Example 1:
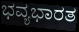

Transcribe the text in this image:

ಭವ್ಯಭಾರತ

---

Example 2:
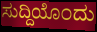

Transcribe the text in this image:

ಸುದ್ದಿಯೊಂದು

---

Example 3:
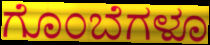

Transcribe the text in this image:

ಗೊಂಬೆಗಳೂ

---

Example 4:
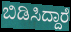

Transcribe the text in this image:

ಬಿಡಿಸಿದ್ದಾರೆ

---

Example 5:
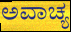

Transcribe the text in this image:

ಅವಾಚ್ಯ